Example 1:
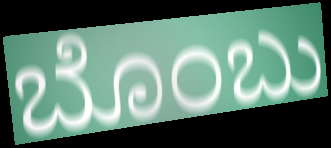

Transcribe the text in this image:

ಬೊಂಬು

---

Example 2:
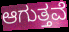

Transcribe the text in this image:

ಆಗುತ್ತವೆ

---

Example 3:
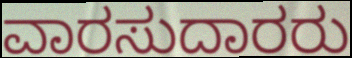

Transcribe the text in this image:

ವಾರಸುದಾರರು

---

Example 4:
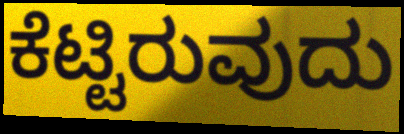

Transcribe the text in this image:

ಕೆಟ್ಟಿರುವುದು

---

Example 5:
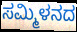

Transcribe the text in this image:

ಸಮ್ಮಿಳನದ